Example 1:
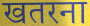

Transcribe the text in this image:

खतरना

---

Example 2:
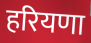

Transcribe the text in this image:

हरियणा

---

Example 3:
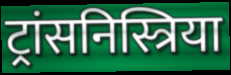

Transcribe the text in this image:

ट्रांसनिस्त्रिया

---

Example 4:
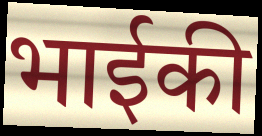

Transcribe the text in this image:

भाईकी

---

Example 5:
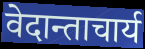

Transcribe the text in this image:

वेदान्ताचार्य